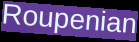
Roupenian